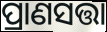
ପ୍ରାଣସତ୍ତା